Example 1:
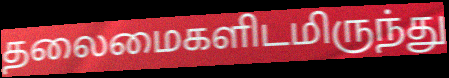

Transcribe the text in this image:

தலைமைகளிடமிருந்து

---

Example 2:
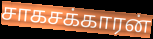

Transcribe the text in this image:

சாகசக்காரன்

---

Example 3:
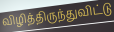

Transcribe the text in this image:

விழித்திருந்துவிட்டு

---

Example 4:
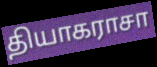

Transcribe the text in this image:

தியாகராசா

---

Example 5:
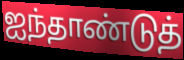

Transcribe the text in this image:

ஐந்தாண்டுத்